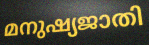
മനുഷ്യജാതി